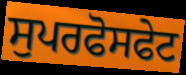
ਸੁਪਰਫੋਸਫੇਟ